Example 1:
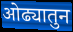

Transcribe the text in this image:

ओढ्यातुन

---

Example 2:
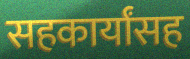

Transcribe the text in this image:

सहकार्यांसह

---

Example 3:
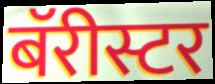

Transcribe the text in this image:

बॅरीस्टर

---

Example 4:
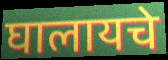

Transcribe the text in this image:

घालायचे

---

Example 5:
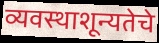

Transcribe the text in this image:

व्यवस्थाशून्यतेचे